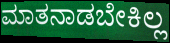
ಮಾತನಾಡಬೇಕಿಲ್ಲ